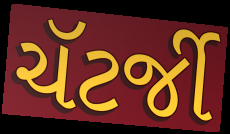
ચૅટર્જી